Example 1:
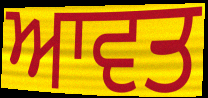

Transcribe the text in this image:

ਆਵਤ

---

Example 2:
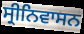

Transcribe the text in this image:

ਸ੍ਰੀਨਿਵਾਸਨ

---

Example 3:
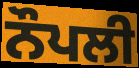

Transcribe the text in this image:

ਨੌਪਲੀ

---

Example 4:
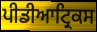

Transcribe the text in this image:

ਪੀਡੀਆਟ੍ਰਿਕਸ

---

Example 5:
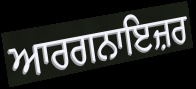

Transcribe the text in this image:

ਆਰਗਨਾਇਜ਼ਰ